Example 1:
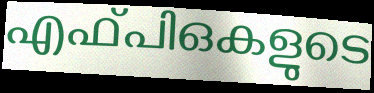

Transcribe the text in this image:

എഫ്പിഒകളുടെ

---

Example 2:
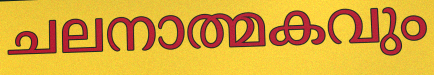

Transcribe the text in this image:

ചലനാത്മകവും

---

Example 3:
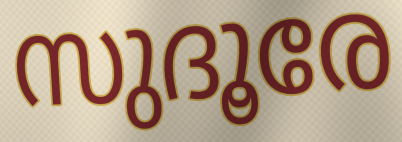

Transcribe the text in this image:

സുദൂരേ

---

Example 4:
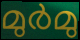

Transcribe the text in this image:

മുർമു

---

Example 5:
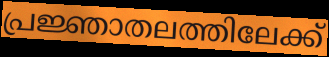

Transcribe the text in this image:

പ്രജ്ഞാതലത്തിലേക്ക്